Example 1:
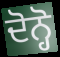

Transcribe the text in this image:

ਦੋਨ੍ਹੋ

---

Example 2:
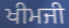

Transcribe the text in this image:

ਖੀਮਜੀ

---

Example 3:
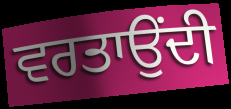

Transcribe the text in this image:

ਵਰਤਾਉਂਦੀ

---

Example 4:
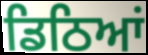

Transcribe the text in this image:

ਡਿਠਿਆਂ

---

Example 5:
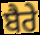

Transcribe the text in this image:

ਬੈਰੇ